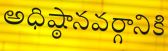
అధిష్ఠానవర్గానికి